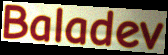
Baladev